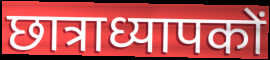
छात्राध्यापकों